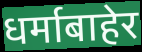
धर्माबाहेर